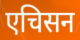
एचिसन